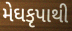
મેઘકૃપાથી